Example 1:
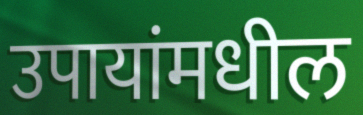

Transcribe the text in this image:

उपायांमधील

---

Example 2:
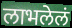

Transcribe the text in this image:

लाभलेलं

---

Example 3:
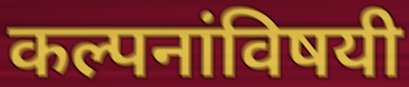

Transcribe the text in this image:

कल्पनांविषयी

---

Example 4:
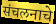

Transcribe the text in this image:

संचलनाचे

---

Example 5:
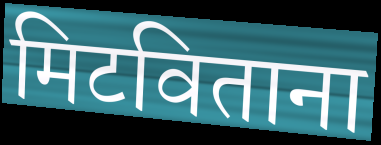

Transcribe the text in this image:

मिटविताना